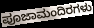
ಪೂಜಾಮಂದಿರಗಳು